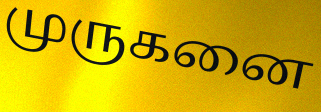
முருகனை